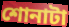
শোনাটা